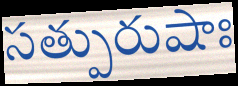
సత్పురుషాః